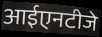
आईएनटीजे